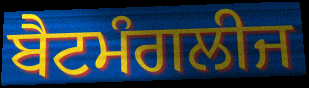
ਬੈਟਮੰਗਲੀਜ